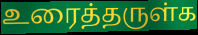
உரைத்தருள்க